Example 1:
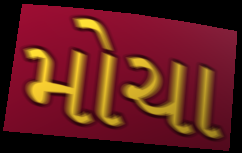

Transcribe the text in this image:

મોચા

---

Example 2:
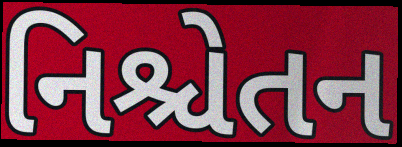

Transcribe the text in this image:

નિશ્ચેતન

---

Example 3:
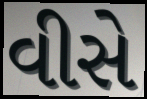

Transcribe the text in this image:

વીસે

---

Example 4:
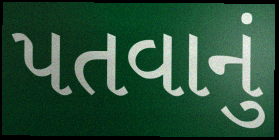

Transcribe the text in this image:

પતવાનું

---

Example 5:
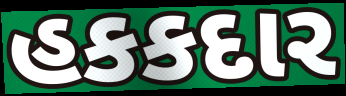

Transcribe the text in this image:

હકકદાર